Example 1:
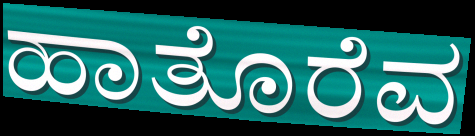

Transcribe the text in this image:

ಹಾತೊರೆವ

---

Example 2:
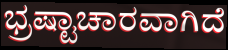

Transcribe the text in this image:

ಭ್ರಷ್ಟಾಚಾರವಾಗಿದೆ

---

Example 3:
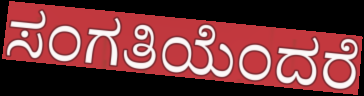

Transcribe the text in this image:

ಸಂಗತಿಯೆಂದರೆ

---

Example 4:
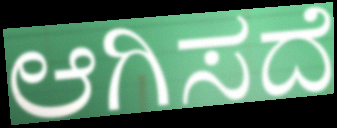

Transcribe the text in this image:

ಆಗಿಸದೆ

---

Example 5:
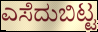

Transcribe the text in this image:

ಎಸೆದುಬಿಟ್ಟ